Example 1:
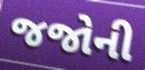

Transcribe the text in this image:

જજોની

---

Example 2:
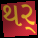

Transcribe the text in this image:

થર્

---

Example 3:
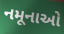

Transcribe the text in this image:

નમૂનાઓ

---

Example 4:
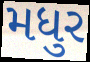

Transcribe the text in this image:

મધુર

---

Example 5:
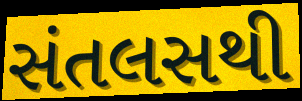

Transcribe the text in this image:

સંતલસથી